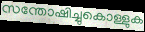
സന്തോഷിച്ചുകൊള്ളുക